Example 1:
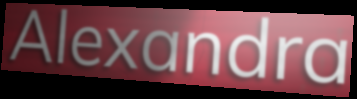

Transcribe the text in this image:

Alexandra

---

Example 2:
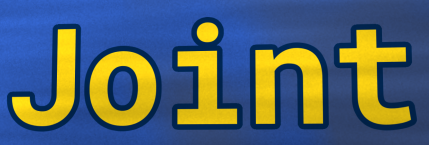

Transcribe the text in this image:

Joint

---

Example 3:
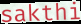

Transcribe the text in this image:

sakthi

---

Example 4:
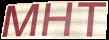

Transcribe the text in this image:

MHT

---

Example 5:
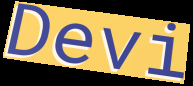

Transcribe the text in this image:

Devi